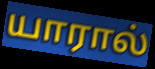
யாரால்